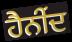
ਹੈਨੀਂਦ